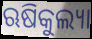
ଋଷିକୁଲ୍ୟା